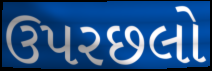
ઉપરછલો